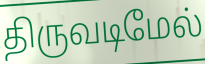
திருவடிமேல்